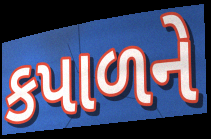
કપાળને